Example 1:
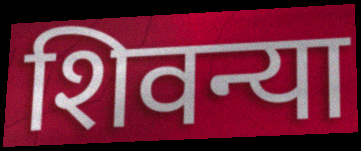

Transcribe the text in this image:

शिवन्या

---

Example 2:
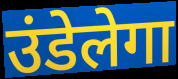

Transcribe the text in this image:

उंडेलेगा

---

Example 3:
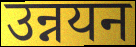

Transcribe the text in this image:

उन्नयन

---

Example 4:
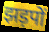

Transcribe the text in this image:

झड़पों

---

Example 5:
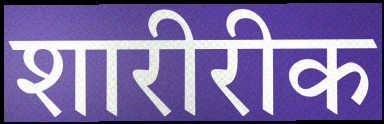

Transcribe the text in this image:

शारीरीक